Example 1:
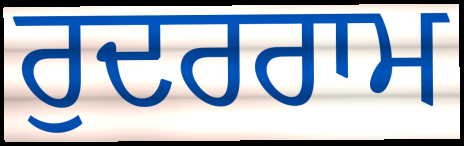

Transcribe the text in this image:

ਰੁਦਰਰਾਮ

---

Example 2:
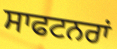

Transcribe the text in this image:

ਸਾਫਟਨਰਾਂ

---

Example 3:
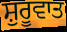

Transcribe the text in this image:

ਸ਼ੁਰੂਵਾਤ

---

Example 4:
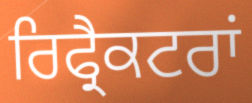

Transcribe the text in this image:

ਰਿਫ੍ਰੈਕਟਰਾਂ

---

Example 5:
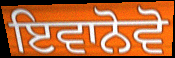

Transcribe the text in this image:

ਇਵਾਨੋਵੋ